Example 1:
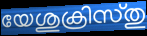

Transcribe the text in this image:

യേശുക്രിസ്തു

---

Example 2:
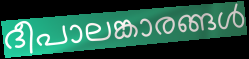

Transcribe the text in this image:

ദീപാലങ്കാരങ്ങൾ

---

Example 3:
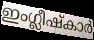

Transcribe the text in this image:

ഇംഗ്ലീഷ്കാർ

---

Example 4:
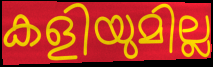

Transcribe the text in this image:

കളിയുമില്ല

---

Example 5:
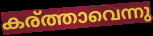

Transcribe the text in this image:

കര്ത്താവെന്നു